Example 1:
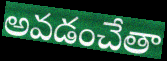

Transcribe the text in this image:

అవడంచేతా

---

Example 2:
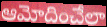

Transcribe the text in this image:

ఆమోదించేలా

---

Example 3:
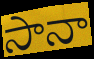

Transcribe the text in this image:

సానా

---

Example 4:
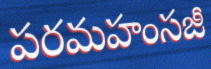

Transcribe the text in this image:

పరమహంసజీ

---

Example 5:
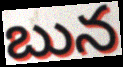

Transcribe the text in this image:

బున